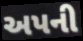
અપની